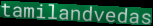
tamilandvedas